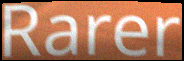
Rarer